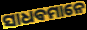
ସାଧଵମାନେ